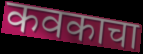
कवकाचा